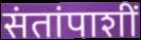
संतांपाशीं